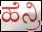
ಹೆನ್ರಿ